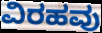
ವಿರಹವು